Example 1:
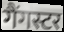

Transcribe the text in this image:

गैंगस्टर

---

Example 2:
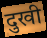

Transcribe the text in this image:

दुखी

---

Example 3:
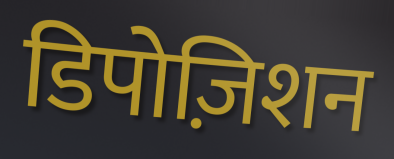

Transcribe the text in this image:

डिपोज़िशन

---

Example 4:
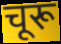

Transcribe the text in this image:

चूरू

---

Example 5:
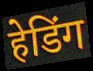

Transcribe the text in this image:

हेडिंग